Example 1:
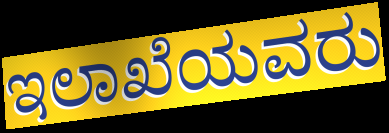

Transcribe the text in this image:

ಇಲಾಖೆಯವರು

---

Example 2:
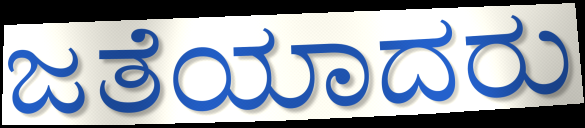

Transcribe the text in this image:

ಜತೆಯಾದರು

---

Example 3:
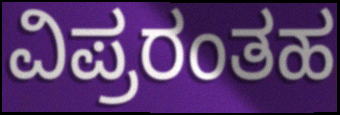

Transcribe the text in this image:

ವಿಪ್ರರಂತಹ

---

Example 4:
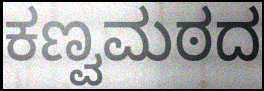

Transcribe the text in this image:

ಕಣ್ವಮಠದ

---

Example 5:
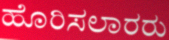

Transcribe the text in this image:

ಹೊರಿಸಲಾರರು